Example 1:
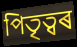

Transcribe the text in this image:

পিতৃত্বৰ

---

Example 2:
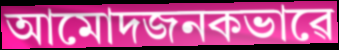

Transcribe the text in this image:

আমোদজনকভাৱে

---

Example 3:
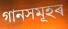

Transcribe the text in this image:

গানসমূহৰ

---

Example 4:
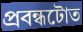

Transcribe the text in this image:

প্ৰবন্ধটোত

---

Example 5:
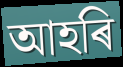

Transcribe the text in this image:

আহৰি